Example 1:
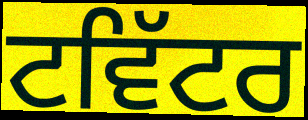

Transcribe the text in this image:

ਟਵਿੱਟਰ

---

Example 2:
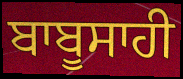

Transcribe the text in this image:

ਬਾਬੂਸਾਹੀ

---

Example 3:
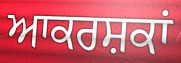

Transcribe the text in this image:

ਆਕਰਸ਼ਕਾਂ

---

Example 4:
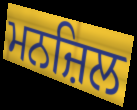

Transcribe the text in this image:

ਮਨਜ਼ਿਲ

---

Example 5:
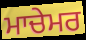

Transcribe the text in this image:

ਮਾਚੇਮਰ